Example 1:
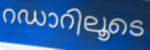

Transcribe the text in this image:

റഡാറിലൂടെ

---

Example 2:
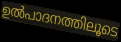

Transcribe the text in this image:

ഉൽപാദനത്തിലൂടെ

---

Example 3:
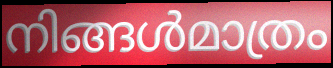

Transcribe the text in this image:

നിങ്ങൾമാത്രം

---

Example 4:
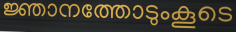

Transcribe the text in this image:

ജ്ഞാനത്തോടുംകൂടെ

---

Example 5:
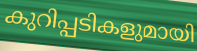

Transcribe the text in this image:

കുറിപ്പടികളുമായി